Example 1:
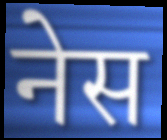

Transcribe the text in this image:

नेस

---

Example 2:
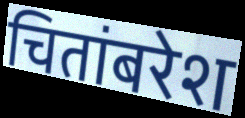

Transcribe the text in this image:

चितांबरेश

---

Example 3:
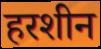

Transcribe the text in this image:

हरशीन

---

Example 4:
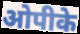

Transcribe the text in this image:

ओपीके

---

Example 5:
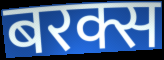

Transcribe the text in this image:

बरक्स